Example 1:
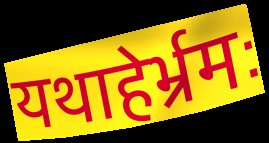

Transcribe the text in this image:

यथाहेर्भ्रमः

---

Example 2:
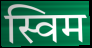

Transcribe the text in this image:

स्विम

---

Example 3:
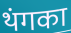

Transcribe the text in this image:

थंगका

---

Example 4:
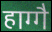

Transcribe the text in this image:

हाग्गै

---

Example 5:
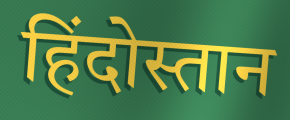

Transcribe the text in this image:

हिंदोस्तान